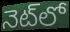
నెట్‌లో